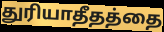
துரியாதீதத்தை